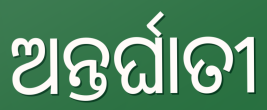
ଅନ୍ତର୍ଘାତୀ